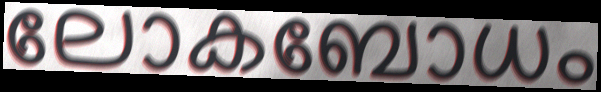
ലോകബോധം